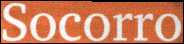
Socorro